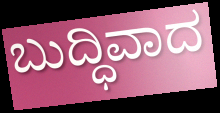
ಬುದ್ಧಿವಾದ